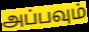
அப்பவும்